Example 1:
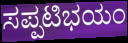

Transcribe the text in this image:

ಸಪ್ಪಟಿಭಯಂ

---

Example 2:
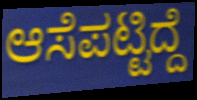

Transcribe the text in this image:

ಆಸೆಪಟ್ಟಿದ್ದೆ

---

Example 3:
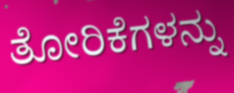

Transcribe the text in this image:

ತೋರಿಕೆಗಳನ್ನು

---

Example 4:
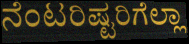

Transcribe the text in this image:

ನೆಂಟರಿಷ್ಟರಿಗೆಲ್ಲಾ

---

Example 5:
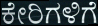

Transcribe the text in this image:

ಕೇರಿಗಳಿಗೆ